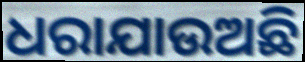
ଧରାଯାଉଅଛି